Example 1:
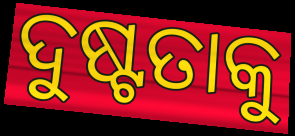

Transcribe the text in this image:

ଦୁଷ୍ଟତାକୁ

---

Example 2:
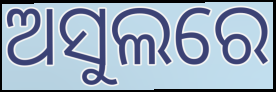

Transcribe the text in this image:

ଅସୁଲରେ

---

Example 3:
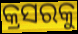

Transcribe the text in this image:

କ୍ରସରକୁ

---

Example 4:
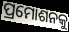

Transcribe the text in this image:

ପ୍ରମୋଶନକୁ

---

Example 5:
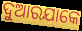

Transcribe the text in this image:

ଦୁଆରଯାକେ